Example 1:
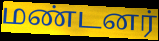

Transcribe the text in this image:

மண்டனர்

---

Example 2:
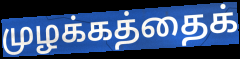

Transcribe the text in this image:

முழக்கத்தைக்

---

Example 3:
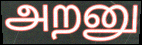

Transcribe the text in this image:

அறனு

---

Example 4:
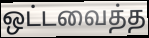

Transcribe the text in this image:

ஒட்டவைத்த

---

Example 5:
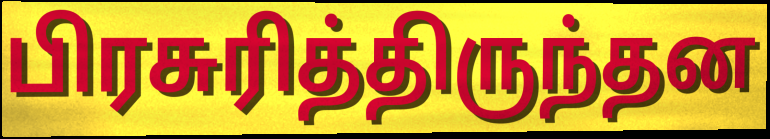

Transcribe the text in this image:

பிரசுரித்திருந்தன